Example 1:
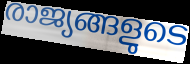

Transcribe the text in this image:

രാജ്യങ്ങളുടെ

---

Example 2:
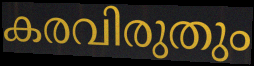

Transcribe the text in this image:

കരവിരുതും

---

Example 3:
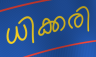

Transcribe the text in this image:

ധിക്കരി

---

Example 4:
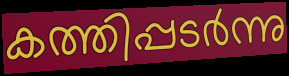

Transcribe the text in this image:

കത്തിപ്പടർന്നു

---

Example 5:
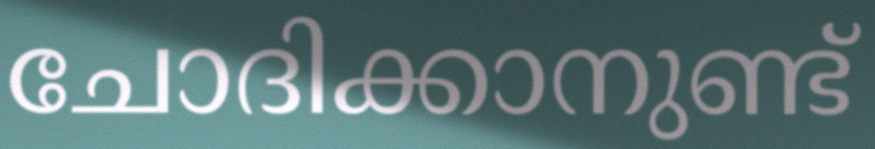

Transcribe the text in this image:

ചോദിക്കാനുണ്ട്